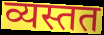
व्यस्तत